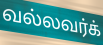
வல்லவர்க்